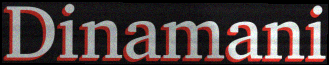
Dinamani